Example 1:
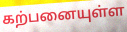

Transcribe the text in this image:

கற்பனையுள்ள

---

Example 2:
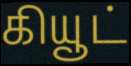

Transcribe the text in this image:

கியூட்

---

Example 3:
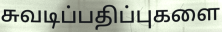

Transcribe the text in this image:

சுவடிப்பதிப்புகளை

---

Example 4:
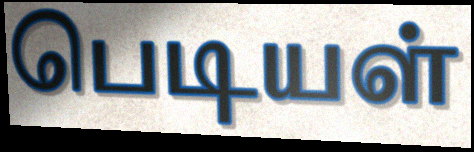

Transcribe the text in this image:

பெடியள்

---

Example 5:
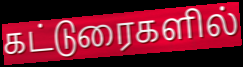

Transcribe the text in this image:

கட்டுரைகளில்